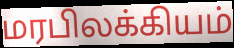
மரபிலக்கியம்